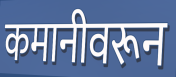
कमानीवरून